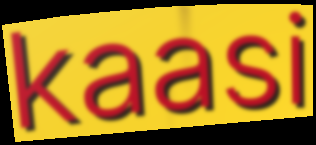
kaasi